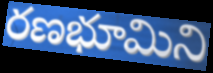
రణభూమిని